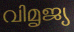
വിമൃജ്യ